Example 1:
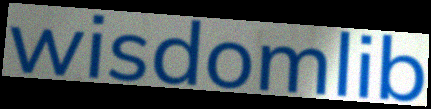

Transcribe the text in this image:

wisdomlib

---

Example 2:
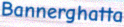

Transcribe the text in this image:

Bannerghatta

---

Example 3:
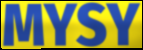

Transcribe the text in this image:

MYSY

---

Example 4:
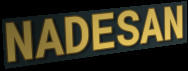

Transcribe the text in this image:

NADESAN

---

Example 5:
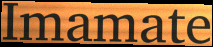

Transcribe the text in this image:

Imamate